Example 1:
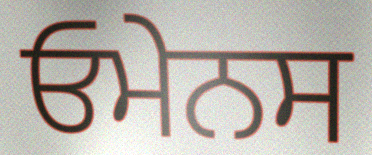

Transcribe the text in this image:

ਓਮੇਨਸ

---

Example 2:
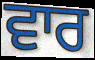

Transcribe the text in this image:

ਵਾਰ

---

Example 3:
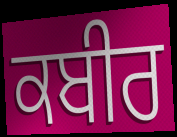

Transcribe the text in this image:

ਕਬੀਰ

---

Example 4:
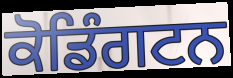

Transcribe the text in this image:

ਕੋਡਿੰਗਟਨ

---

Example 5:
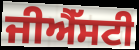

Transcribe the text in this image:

ਜੀਐੱਸਟੀ